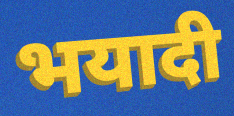
भयादी